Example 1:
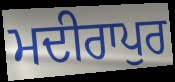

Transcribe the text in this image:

ਮਦੀਰਾਪੁਰ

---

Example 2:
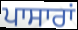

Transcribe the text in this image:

ਪਾਸਾਰਾਂ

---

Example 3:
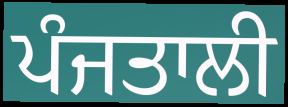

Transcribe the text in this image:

ਪੰਜਤਾਲੀ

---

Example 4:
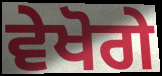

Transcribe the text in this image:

ਵੇਖੋਗੇ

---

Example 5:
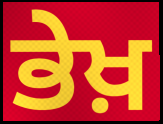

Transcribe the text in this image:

ਭੇਖ਼